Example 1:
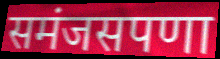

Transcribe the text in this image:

समंजसपणा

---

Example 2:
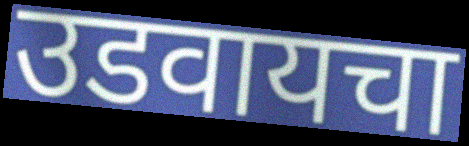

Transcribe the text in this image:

उडवायचा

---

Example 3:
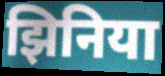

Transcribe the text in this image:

झिनिया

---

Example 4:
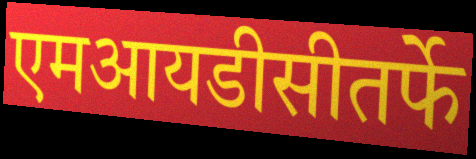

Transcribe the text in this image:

एमआयडीसीतर्फे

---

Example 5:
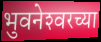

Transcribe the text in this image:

भुवनेश्वरच्या